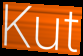
Kut